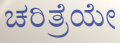
ಚರಿತ್ರೆಯೇ